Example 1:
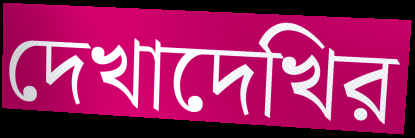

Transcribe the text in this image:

দেখাদেখির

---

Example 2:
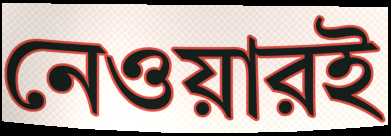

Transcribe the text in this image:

নেওয়ারই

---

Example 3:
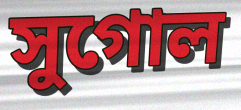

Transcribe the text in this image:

সুগোল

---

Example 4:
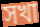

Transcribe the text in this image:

সখা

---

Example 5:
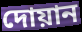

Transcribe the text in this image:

দোয়ান